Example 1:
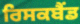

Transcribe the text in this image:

ਰਿਸਕਬੈਂਡ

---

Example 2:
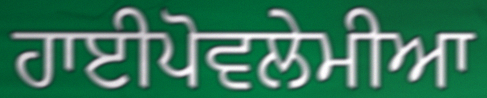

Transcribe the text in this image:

ਹਾਈਪੋਵਲੇਮੀਆ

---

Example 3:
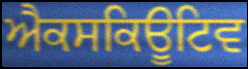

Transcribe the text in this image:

ਐਕਸਕਿਊਟਿਵ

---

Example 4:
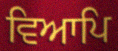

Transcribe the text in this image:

ਵਿਆਪਿ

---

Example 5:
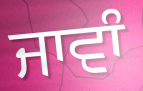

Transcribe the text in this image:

ਜਾਵਾੰ